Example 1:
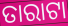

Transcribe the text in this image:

ତାରାଟା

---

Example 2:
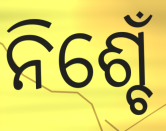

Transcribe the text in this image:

ନିଶ୍ଚେଁ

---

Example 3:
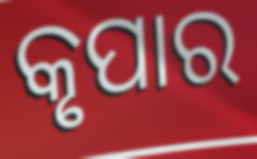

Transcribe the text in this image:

କୃପାର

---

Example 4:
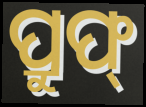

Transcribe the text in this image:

ପ୍ରୁଫ୍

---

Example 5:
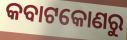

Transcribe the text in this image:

କବାଟକୋଣରୁ